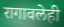
रागावलेही